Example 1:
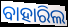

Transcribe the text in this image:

ବାହାରିଲ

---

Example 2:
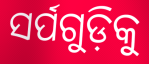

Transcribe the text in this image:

ସର୍ପଗୁଡ଼ିକୁ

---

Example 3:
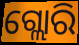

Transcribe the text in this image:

ଗ୍ଲୋରି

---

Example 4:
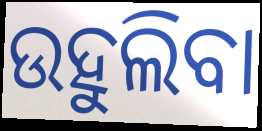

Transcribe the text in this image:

ଉହୁଲିବା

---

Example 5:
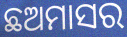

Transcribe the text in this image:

ଛଅମାସର